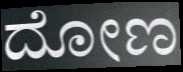
ದೋಣ